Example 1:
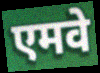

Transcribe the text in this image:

एमवे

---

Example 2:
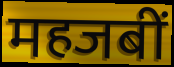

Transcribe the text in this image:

महजबीं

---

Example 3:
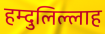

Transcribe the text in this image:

हम्दुलिल्लाह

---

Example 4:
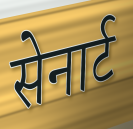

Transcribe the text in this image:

सेनार्ट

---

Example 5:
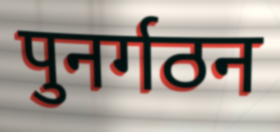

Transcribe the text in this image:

पुनर्गठन